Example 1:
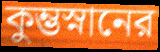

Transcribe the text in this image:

কুম্ভস্নানের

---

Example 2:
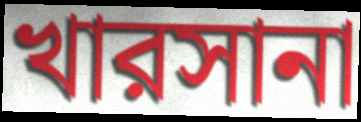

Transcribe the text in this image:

খারসানা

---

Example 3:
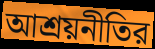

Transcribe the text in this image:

আশ্রয়নীতির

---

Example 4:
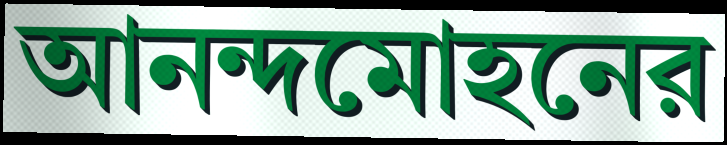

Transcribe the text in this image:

আনন্দমোহনের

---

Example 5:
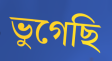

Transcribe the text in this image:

ভুগেছি